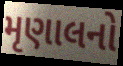
મૃણાલનો